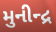
મુનીન્દ્ર